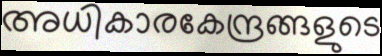
അധികാരകേന്ദ്രങ്ങളുടെ